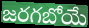
జరగబోయే